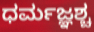
ಧರ್ಮಜ್ಞಶ್ಚ